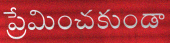
ప్రేమించకుండా